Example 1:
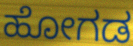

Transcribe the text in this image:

ಹೋಗಡ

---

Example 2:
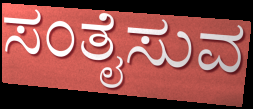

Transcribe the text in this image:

ಸಂತೈಸುವ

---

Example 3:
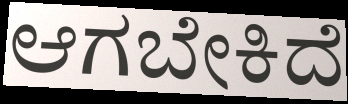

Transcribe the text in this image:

ಆಗಬೇಕಿದೆ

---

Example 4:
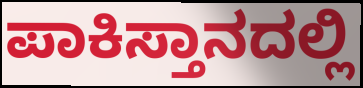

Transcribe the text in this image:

ಪಾಕಿಸ್ತಾನದಲ್ಲಿ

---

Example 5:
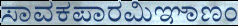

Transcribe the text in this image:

ಸಾವಕಪಾರಮಿಞಾಣಂ